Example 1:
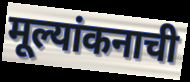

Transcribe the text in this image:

मूल्यांकनाची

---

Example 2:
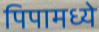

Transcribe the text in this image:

पिपामध्ये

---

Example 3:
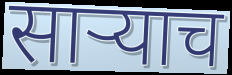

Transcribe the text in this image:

साऱ्याच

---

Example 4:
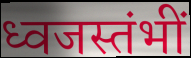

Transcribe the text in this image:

ध्वजस्तंभीं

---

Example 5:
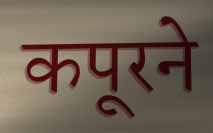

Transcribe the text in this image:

कपूरने